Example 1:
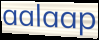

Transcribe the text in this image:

aalaap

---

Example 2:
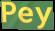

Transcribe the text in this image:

Pey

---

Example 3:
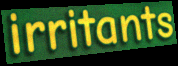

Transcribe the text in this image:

irritants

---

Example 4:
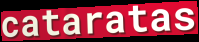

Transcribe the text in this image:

cataratas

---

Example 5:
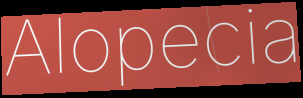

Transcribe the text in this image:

Alopecia